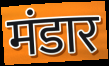
मंडार